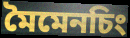
মৈমেনচিং